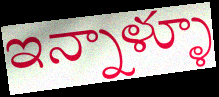
ఇన్నాళ్ళూ